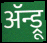
ॲन्ड्रू